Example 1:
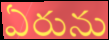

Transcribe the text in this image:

ఏరును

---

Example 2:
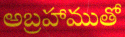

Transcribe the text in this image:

అబ్రహాముతో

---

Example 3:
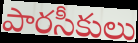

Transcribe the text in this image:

పారసీకులు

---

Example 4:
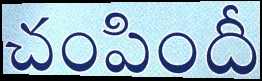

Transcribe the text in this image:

చంపిందీ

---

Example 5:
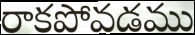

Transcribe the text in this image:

రాకపోవడము